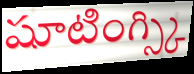
షూటింగ్స్కి